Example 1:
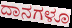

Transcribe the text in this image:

ದಾನಗಳೂ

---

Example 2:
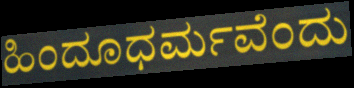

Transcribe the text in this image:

ಹಿಂದೂಧರ್ಮವೆಂದು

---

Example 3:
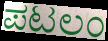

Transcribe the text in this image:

ಪಟಲಂ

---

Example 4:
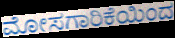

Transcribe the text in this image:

ಮೋಸಗಾರಿಕೆಯಿಂದ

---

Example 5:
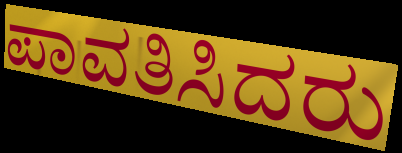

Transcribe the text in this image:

ಪಾವತಿಸಿದರು